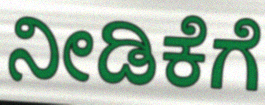
ನೀಡಿಕೆಗೆ